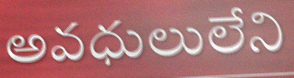
అవధులులేని